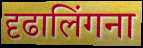
दृढालिंगना